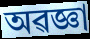
অৱজ্ঞা